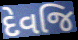
દેવજિ